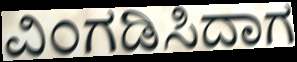
ವಿಂಗಡಿಸಿದಾಗ